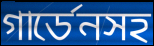
গার্ডেনসহ